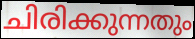
ചിരിക്കുന്നതും